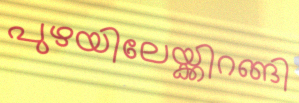
പുഴയിലേയ്ക്കിറങ്ങി